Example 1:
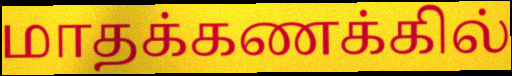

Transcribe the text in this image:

மாதக்கணக்கில்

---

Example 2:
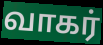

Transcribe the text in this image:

வாகர்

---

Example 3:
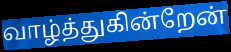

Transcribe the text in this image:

வாழ்த்துகின்றேன்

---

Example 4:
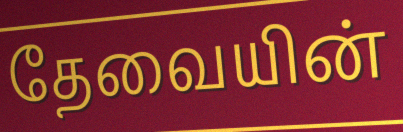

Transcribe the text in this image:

தேவையின்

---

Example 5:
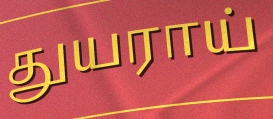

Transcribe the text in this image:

துயராய்